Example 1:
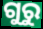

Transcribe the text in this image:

ଗୁରୁ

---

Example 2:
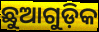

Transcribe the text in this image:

ଛୁଆଗୁଡ଼ିକ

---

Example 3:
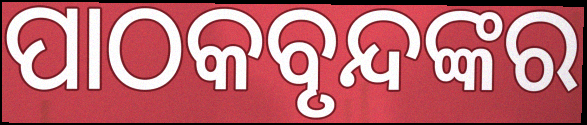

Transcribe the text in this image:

ପାଠକବୃନ୍ଦଙ୍କର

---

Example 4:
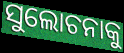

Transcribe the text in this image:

ସୁଲୋଚନାକୁ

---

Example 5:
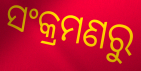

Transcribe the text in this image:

ସଂକ୍ରମଣରୁ